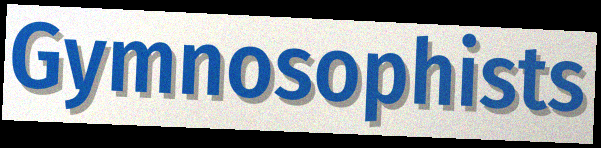
Gymnosophists